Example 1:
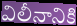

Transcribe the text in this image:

విలీనానికి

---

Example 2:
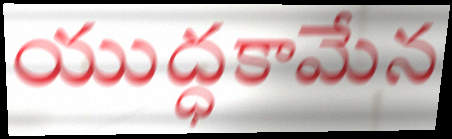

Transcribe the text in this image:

యుద్ధకామేన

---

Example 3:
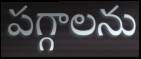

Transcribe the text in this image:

పగ్గాలను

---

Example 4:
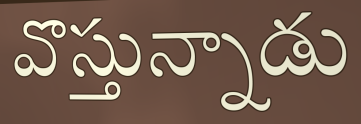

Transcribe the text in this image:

వొస్తున్నాడు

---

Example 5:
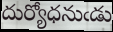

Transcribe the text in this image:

దుర్యోధనుఁడు